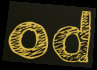
od